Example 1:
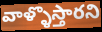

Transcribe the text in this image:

వాళ్ళొస్తారని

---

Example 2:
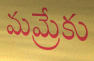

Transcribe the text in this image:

మమ్రేకు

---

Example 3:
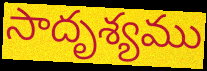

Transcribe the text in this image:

సాదృశ్యము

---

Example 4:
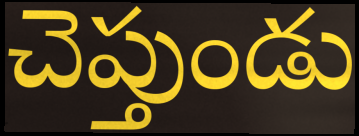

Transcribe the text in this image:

చెప్తుండు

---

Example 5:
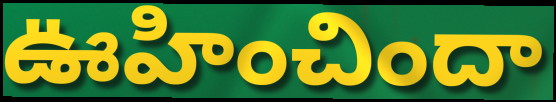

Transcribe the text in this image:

ఊహించిందా